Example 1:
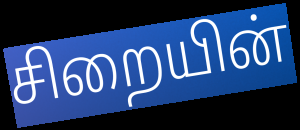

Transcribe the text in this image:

சிறையின்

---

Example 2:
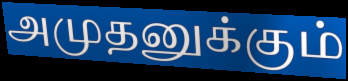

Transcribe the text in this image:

அமுதனுக்கும்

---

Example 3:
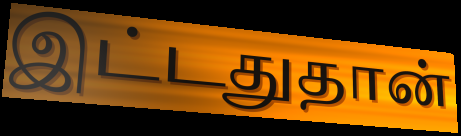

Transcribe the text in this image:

இட்டதுதான்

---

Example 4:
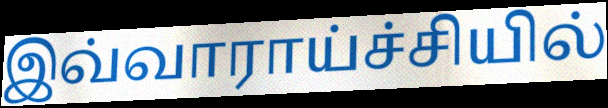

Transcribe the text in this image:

இவ்வாராய்ச்சியில்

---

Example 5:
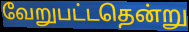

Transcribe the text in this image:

வேறுபட்டதென்று